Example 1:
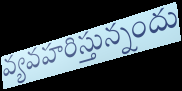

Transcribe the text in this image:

వ్యవహరిస్తున్నందు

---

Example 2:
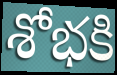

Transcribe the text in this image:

శోభకి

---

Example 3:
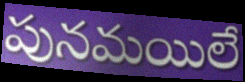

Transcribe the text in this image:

పునమయిలే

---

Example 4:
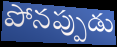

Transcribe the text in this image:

పోనప్పుడు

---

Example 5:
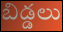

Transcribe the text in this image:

బిడ్డలు